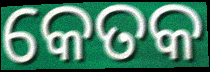
କେତକ